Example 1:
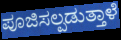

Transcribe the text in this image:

ಪೂಜಿಸಲ್ಪಡುತ್ತಾಳೆ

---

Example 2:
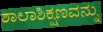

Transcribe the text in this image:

ಶಾಲಾಶಿಕ್ಷಣವನ್ನು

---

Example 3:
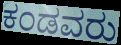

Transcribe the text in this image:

ಕಂಡವರು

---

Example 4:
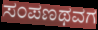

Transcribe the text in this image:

ಸಂಪಣಥವಗ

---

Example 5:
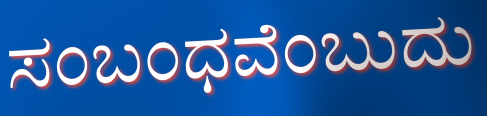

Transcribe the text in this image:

ಸಂಬಂಧವೆಂಬುದು